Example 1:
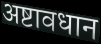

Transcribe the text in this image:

अष्टावधान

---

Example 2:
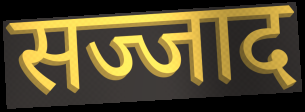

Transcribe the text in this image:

सज्जाद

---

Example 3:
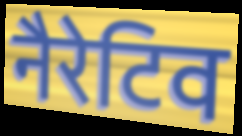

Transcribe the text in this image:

नैरेटिव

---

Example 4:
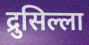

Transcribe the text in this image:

द्रुसिल्ला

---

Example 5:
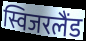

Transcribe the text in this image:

स्विजरलैंड